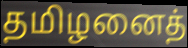
தமிழனைத்